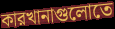
কারখানাগুলোতে